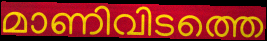
മാണിവിടത്തെ